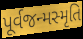
પૂર્વજન્મસ્મૃતિ